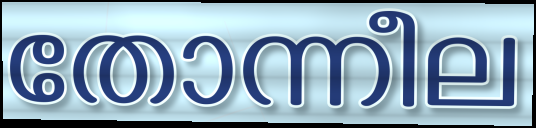
തോന്നീല